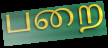
பறை